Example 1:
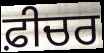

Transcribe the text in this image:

ਫ਼ੀਚਰ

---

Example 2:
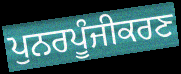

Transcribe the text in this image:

ਪੁਨਰਪੂੰਜੀਕਰਣ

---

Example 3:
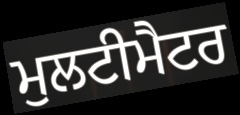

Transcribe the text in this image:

ਮੁਲਟੀਮੈਟਰ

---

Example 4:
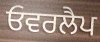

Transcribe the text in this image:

ਓਵਰਲੈਪ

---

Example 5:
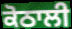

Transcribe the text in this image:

ਕੋਠਾਲੀ